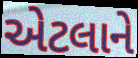
એટલાને